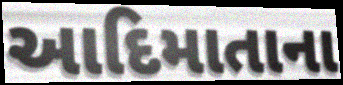
આદિમાતાના